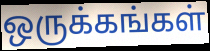
ஒருக்கங்கள்